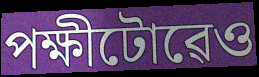
পক্ষীটোৱেও